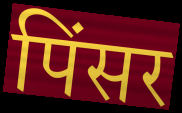
पिंसर